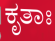
ಕೃತಾಃ